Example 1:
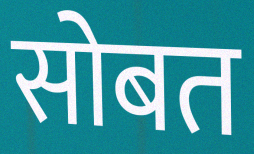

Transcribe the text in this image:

सोबत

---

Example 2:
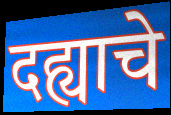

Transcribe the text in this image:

दह्याचे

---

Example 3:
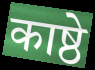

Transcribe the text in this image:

काष्ठे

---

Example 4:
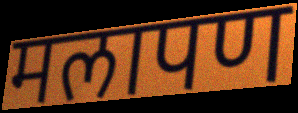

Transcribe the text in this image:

मलापण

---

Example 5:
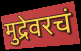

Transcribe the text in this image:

मुद्रेवरचं